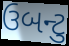
ઉબન્ટુ